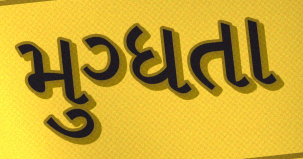
મુગ્ધતા